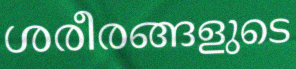
ശരീരങ്ങളുടെ